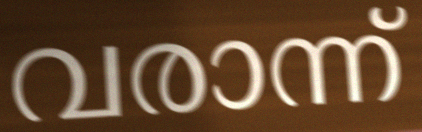
വരാന്ന്